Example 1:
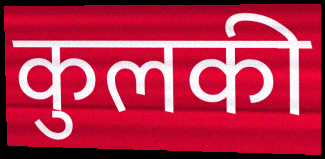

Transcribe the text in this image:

कुलकी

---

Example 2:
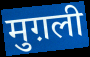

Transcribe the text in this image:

मुग़ली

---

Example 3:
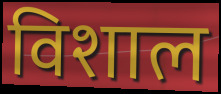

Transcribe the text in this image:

विशाल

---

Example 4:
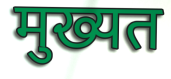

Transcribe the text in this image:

मुख्यत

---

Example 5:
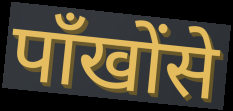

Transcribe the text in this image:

पाँखोंसे